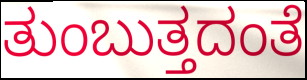
ತುಂಬುತ್ತದಂತೆ